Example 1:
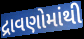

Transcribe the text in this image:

દ્રાવણોમાંથી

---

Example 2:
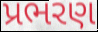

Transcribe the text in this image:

પ્રભરણ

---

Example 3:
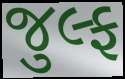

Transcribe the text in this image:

જુલ્ફ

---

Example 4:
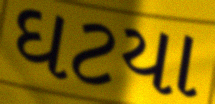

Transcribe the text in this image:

ઘટયા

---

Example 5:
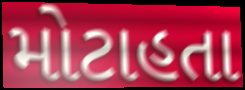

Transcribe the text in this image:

મોટાહતા